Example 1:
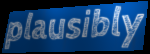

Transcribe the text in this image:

plausibly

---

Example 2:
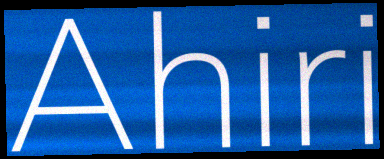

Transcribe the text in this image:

Ahiri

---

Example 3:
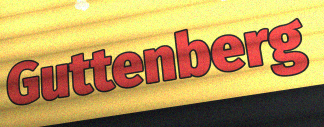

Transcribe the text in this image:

Guttenberg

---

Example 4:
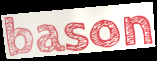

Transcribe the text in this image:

bason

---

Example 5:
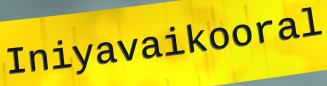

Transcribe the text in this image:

Iniyavaikooral